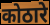
कोठारे